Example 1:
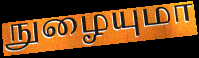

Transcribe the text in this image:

நுழையுமா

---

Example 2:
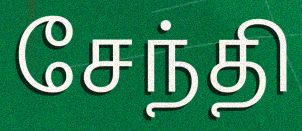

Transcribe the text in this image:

சேந்தி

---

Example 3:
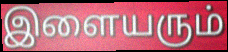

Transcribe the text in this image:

இளையரும்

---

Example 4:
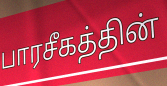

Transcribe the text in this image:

பாரசீகத்தின்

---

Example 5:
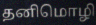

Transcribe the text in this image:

தனிமொழி